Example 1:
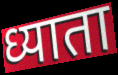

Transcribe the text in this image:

ध्याता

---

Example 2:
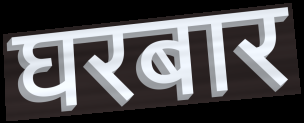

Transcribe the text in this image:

घरबार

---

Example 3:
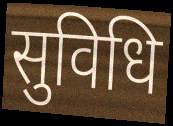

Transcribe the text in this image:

सुविधि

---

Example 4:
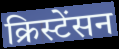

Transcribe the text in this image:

क्रिस्टेंसन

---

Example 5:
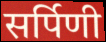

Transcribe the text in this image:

सर्पिणी